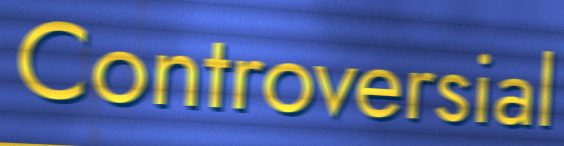
Controversial